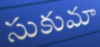
సుకుమా